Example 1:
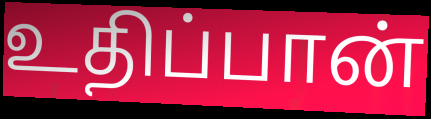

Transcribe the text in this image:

உதிப்பான்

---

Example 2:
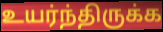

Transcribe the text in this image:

உயர்ந்திருக்க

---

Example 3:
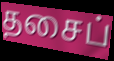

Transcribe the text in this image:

தசைப்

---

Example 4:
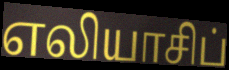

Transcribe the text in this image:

எலியாசிப்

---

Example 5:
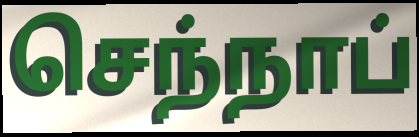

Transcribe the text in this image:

செந்நாப்